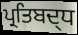
ਪ੍ਰਤਿਬਦ੍ਧ